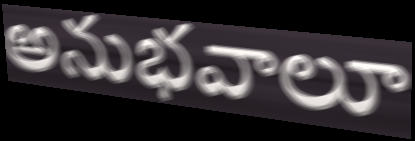
అనుభవాలూ